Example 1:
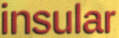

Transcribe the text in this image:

insular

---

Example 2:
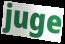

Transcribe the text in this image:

juge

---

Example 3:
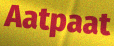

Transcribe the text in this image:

Aatpaat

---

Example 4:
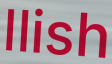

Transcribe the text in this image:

Ilish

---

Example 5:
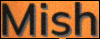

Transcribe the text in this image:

Mish